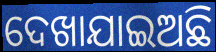
ଦେଖାଯାଇଅଛି